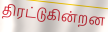
திரட்டுகின்றன